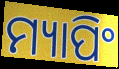
ମ୍ୟାପିଂ